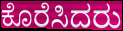
ಕೊರೆಸಿದರು